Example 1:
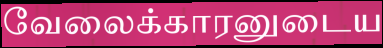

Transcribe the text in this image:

வேலைக்காரனுடைய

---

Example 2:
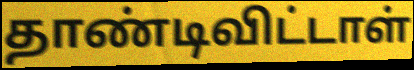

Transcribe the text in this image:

தாண்டிவிட்டாள்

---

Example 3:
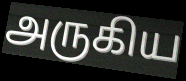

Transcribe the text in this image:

அருகிய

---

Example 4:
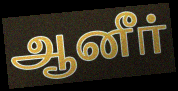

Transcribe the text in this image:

ஆனீர்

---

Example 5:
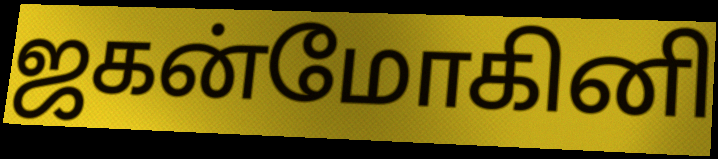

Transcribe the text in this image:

ஜகன்மோகினி